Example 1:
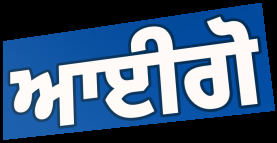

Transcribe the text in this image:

ਆਈਗੋ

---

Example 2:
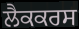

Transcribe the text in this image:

ਲੈਕਕਰਸ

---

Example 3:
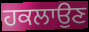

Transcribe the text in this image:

ਹਕਲਾਉਣ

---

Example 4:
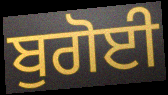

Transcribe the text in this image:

ਬੁਗੋਈ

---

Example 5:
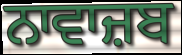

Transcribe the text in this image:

ਨਾਵਾਜ਼ਬ